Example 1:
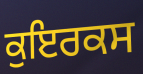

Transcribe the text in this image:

ਕੁਇਰਕਸ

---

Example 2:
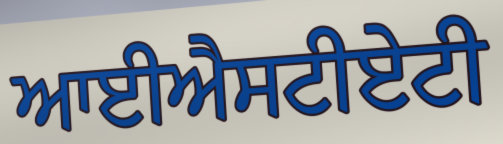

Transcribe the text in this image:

ਆਈਐਸਟੀਏਟੀ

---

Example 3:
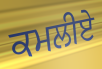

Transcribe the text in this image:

ਕਮਲੀਏ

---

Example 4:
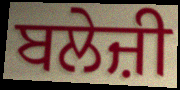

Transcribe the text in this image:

ਬਲੇਜ਼ੀ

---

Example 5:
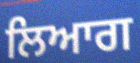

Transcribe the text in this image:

ਲਿਆਗ